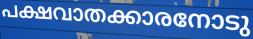
പക്ഷവാതക്കാരനോടു